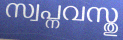
സ്വപ്നവസ്തു